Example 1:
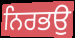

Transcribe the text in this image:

ਨਿਰਭਉ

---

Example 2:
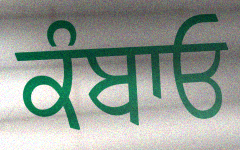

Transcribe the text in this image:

ਕੰਬਾਓ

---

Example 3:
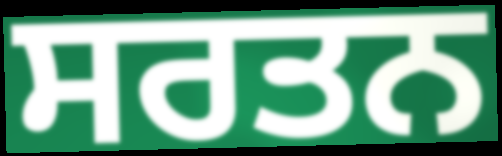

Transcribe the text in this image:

ਸਰਤਨ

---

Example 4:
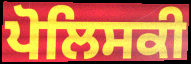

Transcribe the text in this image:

ਪੋਲਿਸਕੀ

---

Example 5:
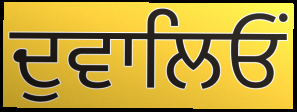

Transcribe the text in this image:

ਦੁਵਾਲਿਓਂ